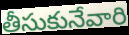
తీసుకునేవారి